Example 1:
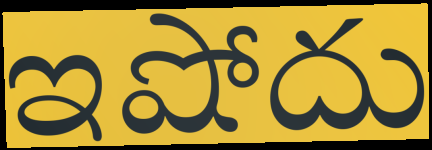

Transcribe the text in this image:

ఇషోదు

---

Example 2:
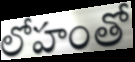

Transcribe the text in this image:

లోహంతో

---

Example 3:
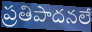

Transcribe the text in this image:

ప్రతిపాదనలే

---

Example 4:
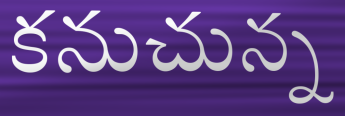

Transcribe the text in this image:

కనుచున్న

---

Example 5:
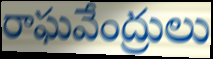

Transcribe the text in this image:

రాఘవేంద్రులు